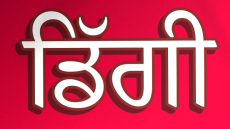
ਡਿੱਗੀ